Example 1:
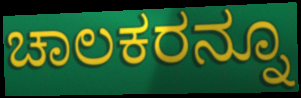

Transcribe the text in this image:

ಚಾಲಕರನ್ನೂ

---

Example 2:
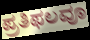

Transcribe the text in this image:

ಪ್ರತಿಫಲವೂ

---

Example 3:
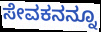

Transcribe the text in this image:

ಸೇವಕನನ್ನೂ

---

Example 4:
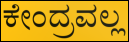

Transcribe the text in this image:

ಕೇಂದ್ರವಲ್ಲ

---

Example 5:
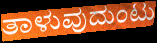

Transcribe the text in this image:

ತಾಳುವುದುಂಟು